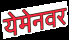
येमेनवर